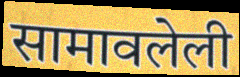
सामावलेली